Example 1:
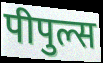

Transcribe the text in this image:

पीपुल्स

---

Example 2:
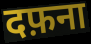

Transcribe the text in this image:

दफ़ना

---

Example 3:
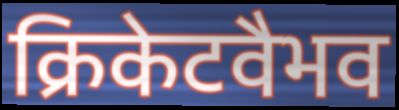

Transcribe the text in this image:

क्रिकेटवैभव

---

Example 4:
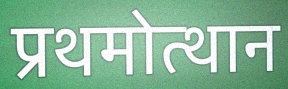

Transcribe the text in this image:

प्रथमोत्थान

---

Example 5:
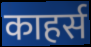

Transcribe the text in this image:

काहर्स